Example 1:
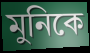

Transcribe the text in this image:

মুনিকে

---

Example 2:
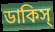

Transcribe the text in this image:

ডাকিস্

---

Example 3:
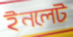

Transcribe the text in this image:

ইনলেট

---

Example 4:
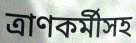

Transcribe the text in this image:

ত্রাণকর্মীসহ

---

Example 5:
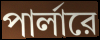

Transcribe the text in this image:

পার্লারে